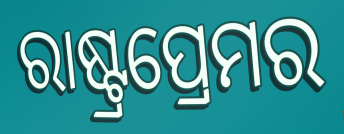
ରାଷ୍ଟ୍ରପ୍ରେମର